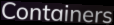
Containers